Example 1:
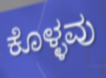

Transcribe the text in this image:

ಕೊಳ್ಳವು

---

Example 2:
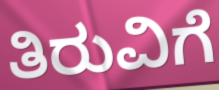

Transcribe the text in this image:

ತಿರುವಿಗೆ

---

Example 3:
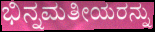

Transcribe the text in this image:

ಭಿನ್ನಮತೀಯರನ್ನು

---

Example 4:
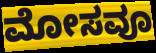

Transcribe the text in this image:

ಮೋಸವೂ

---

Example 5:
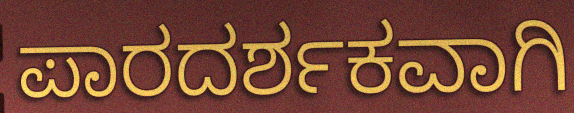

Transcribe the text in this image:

ಪಾರದರ್ಶಕವಾಗಿ